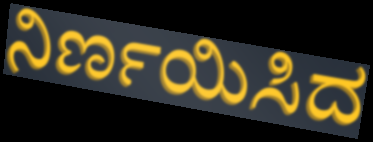
ನಿರ್ಣಯಿಸಿದ